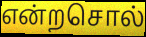
என்றசொல்